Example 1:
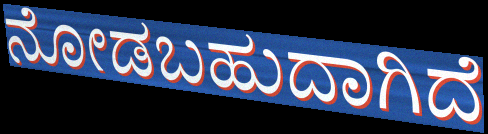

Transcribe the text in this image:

ನೋಡಬಹುದಾಗಿದೆ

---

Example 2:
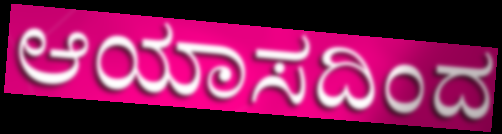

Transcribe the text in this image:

ಆಯಾಸದಿಂದ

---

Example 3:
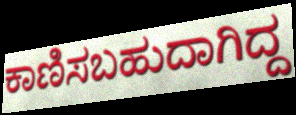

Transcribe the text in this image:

ಕಾಣಿಸಬಹುದಾಗಿದ್ದ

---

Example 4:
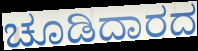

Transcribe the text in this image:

ಚೂಡಿದಾರದ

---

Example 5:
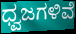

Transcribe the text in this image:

ಧ್ವಜಗಳಿವೆ